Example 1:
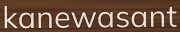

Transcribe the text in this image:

kanewasant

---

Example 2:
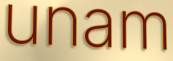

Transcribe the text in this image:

unam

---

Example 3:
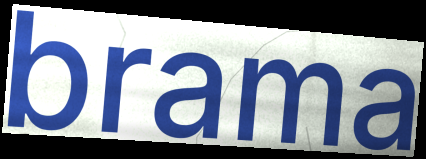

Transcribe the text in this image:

brama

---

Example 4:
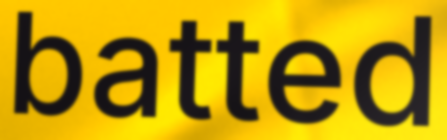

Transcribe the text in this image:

batted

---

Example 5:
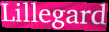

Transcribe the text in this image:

Lillegard